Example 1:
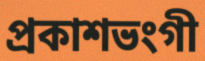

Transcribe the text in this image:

প্ৰকাশভংগী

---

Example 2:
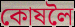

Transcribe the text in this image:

কোষলৈ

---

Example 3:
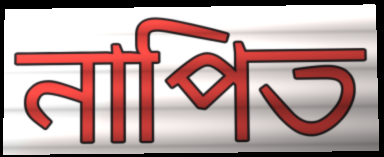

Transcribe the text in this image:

নাপিত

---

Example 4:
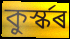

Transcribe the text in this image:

কুৰ্স্কৰ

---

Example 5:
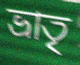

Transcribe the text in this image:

ভ্ৰাতৃ